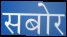
सबोर